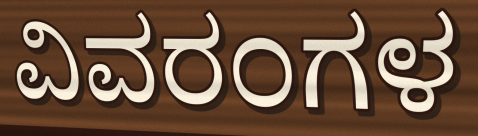
ವಿವರಂಗಳ